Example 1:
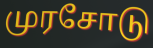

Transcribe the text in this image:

முரசோடு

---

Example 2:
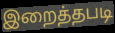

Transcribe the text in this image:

இறைத்தபடி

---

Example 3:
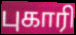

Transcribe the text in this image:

புகாரி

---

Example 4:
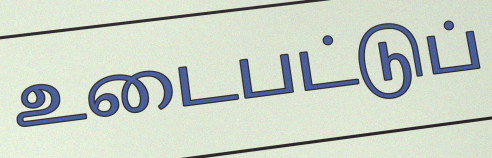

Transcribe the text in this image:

உடைபட்டுப்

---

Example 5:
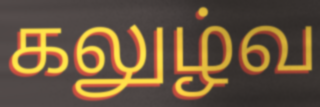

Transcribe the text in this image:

கலுழ்வ